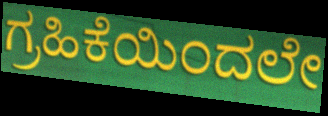
ಗ್ರಹಿಕೆಯಿಂದಲೇ